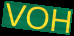
VOH